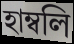
হাম্বলি